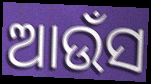
ଆଉଁସ